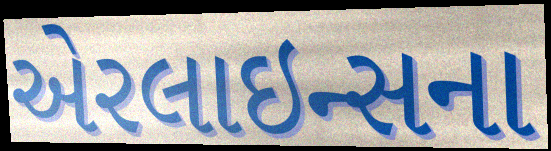
એરલાઇન્સના